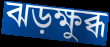
ঝড়ক্ষুব্ধ